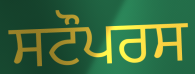
ਸਟੌਪਰਸ